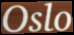
Oslo